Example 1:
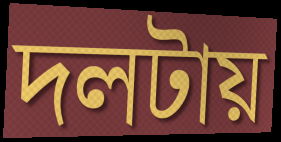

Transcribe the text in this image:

দলটায়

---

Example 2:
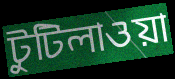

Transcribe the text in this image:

টুটিলাওয়া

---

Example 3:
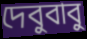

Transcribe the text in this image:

দেবুবাবু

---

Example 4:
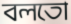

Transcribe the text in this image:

বলতো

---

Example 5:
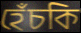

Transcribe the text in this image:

হেঁচকি